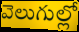
వెలుగుల్లో